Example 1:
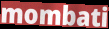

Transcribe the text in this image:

mombati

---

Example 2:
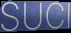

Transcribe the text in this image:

SUCI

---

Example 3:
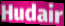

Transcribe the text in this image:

Hudair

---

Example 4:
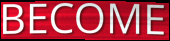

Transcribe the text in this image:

BECOME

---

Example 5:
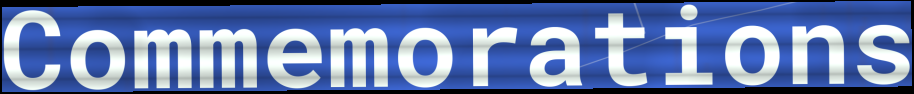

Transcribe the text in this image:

Commemorations